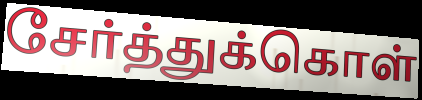
சேர்த்துக்கொள்